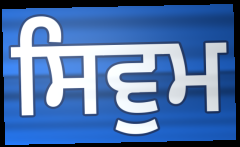
ਸਿਵੁਮ